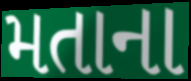
મતાના